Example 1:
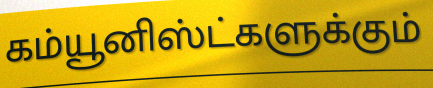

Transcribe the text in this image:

கம்யூனிஸ்ட்களுக்கும்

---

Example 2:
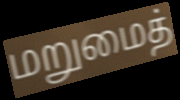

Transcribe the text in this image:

மறுமைத்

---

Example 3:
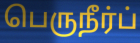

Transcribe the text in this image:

பெருநீர்ப்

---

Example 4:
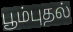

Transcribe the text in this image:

பூம்புதல்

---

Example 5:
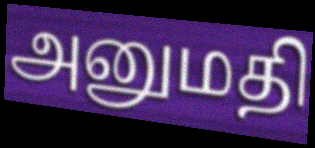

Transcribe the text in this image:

அனுமதி